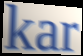
kar